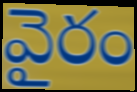
వైరం